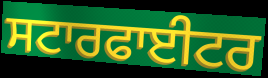
ਸਟਾਰਫਾਈਟਰ